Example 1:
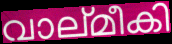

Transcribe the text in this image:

വാല്മീകി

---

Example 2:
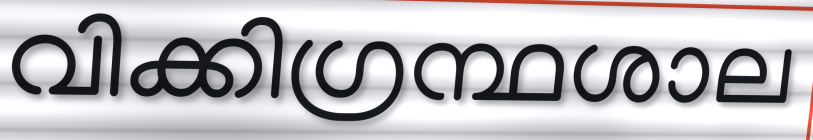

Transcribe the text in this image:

വിക്കിഗ്രന്ഥശാല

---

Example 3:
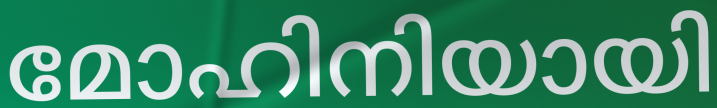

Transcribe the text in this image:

മോഹിനിയായി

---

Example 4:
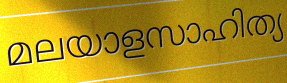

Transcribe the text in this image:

മലയാളസാഹിത്യ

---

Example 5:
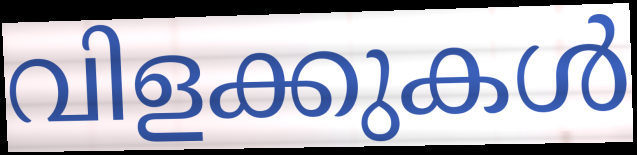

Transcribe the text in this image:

വിളക്കുകൾ